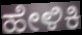
ಹೇಳಿಕಿ